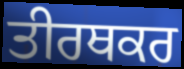
ਤੀਰਥਕਰ